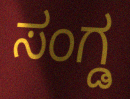
ಸಂಗ್ಡ